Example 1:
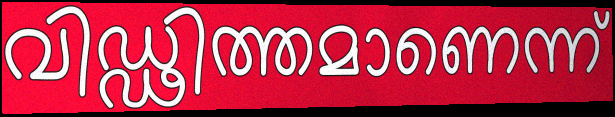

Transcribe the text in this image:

വിഡ്ഢിത്തമാണെന്ന്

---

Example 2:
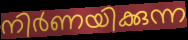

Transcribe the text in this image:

നിർണയിക്കുന്ന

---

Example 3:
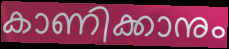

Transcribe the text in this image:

കാണിക്കാനും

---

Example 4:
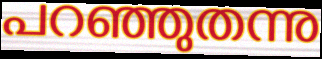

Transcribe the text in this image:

പറഞ്ഞുതന്നു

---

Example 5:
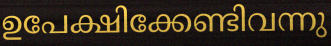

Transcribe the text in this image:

ഉപേക്ഷിക്കേണ്ടിവന്നു